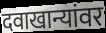
दवाखान्यांवर